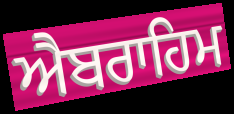
ਐਬਰਾਹਿਮ